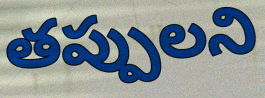
తప్పులని